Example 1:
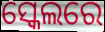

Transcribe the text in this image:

ସ୍କେଲରେ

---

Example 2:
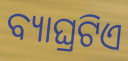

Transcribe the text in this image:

ବ୍ୟାଘ୍ରଟିଏ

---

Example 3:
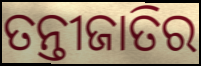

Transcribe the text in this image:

ତନ୍ତୀଜାତିର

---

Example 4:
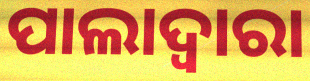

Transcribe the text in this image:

ପାଲାଦ୍ୱାରା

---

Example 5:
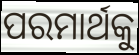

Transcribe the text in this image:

ପରମାର୍ଥକୁ